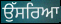
ਉੱਸਰਿਆ